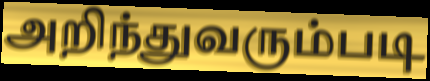
அறிந்துவரும்படி